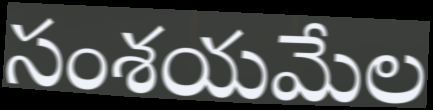
సంశయమేల